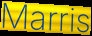
Marris